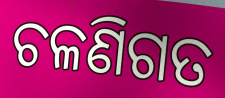
ଚଳଣିଗତ